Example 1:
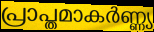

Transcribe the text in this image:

പ്രാപ്തമാകർണ്ണ്യ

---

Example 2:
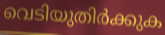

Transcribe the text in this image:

വെടിയുതിർക്കുക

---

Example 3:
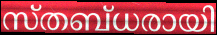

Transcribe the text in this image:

സ്തബ്ധരായി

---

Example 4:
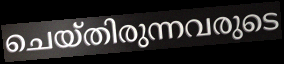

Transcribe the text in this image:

ചെയ്തിരുന്നവരുടെ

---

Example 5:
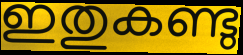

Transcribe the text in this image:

ഇതുകണ്ടു